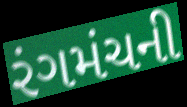
રંગમંચની